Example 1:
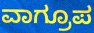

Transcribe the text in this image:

ವಾಗ್ರೂಪ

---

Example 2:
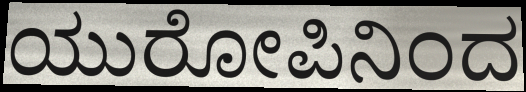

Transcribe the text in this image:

ಯುರೋಪಿನಿಂದ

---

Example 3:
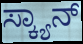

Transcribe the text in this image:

ಸ್ಕ್ಯಾನ್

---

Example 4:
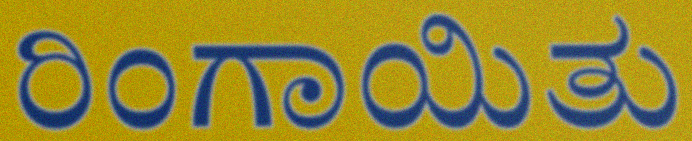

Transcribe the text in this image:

ರಿಂಗಾಯಿತು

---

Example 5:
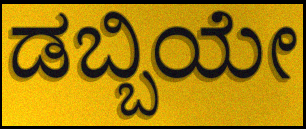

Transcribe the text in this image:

ಡಬ್ಬಿಯೇ